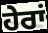
ਹੇਰਾਂ